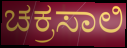
ಚಕ್ರಸಾಲಿ